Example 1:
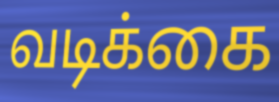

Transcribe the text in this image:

வடிக்கை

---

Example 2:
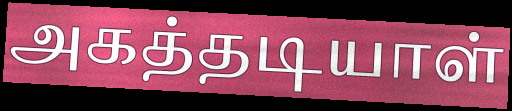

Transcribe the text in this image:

அகத்தடியாள்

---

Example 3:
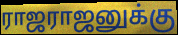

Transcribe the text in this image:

ராஜராஜனுக்கு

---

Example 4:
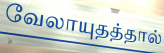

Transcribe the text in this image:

வேலாயுதத்தால்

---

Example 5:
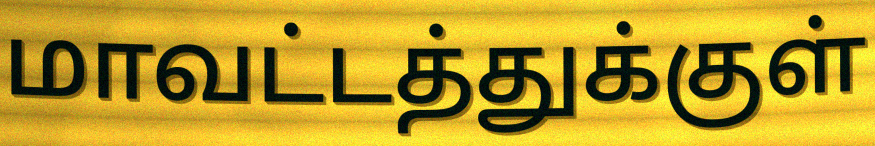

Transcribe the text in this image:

மாவட்டத்துக்குள்